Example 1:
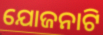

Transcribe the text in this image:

ଯୋଜନାଟି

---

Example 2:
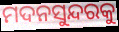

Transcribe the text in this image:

ମଦନସୁନ୍ଦରକୁ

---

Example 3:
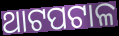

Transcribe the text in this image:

ଥାଟପଟାଳ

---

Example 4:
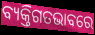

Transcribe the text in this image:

ବ୍ୟକ୍ତିଗତଭାବରେ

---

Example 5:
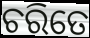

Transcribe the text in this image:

ଚରିତେ